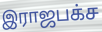
இராஜபக்ச